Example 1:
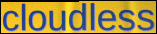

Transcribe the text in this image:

cloudless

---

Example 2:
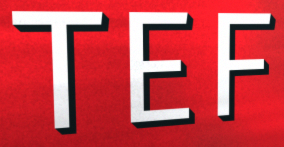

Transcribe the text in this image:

TEF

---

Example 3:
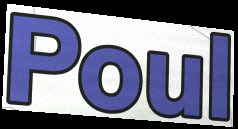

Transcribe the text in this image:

Poul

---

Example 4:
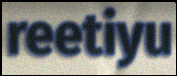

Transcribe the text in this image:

reetiyu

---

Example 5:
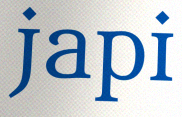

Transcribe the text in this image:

japi